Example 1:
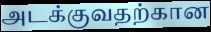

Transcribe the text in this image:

அடக்குவதற்கான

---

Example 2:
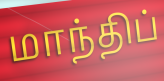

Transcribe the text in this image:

மாந்திப்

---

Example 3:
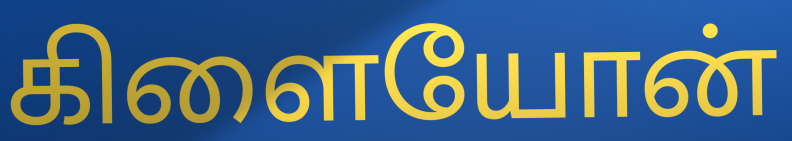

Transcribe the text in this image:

கிளையோன்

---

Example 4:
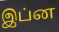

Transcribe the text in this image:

இப்ன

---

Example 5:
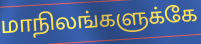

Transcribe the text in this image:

மாநிலங்களுக்கே